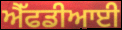
ਐੱਫਡੀਆਈ